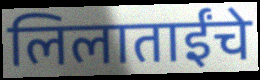
लिलाताईंचे